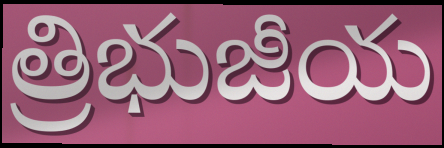
త్రిభుజీయ